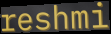
reshmi